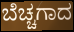
ಬೆಚ್ಚಗಾದ